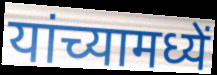
यांच्यामध्यें